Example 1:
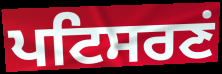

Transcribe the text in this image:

ਪਟਿਸਰਣਂ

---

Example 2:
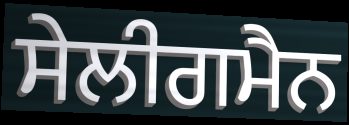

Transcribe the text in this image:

ਸੇਲੀਗਮੈਨ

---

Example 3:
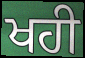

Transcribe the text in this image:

ਖਹੀ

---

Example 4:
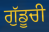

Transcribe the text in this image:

ਗੁੱਡੂਚੀ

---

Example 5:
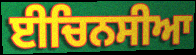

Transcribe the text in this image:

ਈਚਿਨਸੀਆ